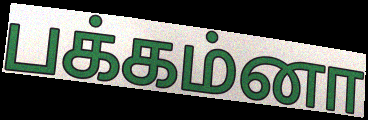
பக்கம்னா